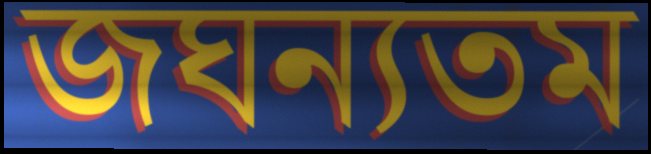
জঘন্যতম